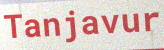
Tanjavur